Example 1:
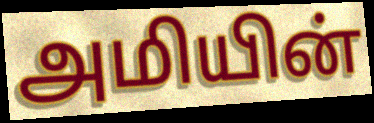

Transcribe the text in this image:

அமியின்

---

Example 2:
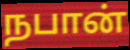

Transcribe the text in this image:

நபான்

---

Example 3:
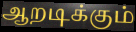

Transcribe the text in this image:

ஆறடிக்கும்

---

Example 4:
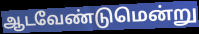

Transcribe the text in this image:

ஆடவேண்டுமென்று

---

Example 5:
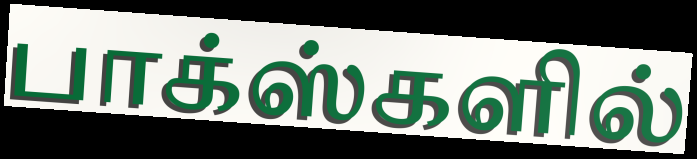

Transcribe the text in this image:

பாக்ஸ்களில்